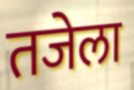
तजेला